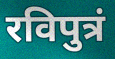
रविपुत्रं